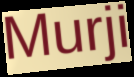
Murji